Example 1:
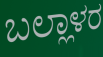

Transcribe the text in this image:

ಬಲ್ಲಾಳರ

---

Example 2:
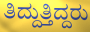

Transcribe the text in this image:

ತಿದ್ದುತ್ತಿದ್ದರು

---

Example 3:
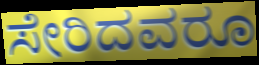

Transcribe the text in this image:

ಸೇರಿದವರೂ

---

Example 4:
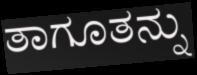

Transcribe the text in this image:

ತಾಗೂತನ್ನು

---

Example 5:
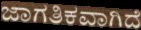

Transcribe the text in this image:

ಜಾಗತಿಕವಾಗಿದೆ